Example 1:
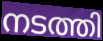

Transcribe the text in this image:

നടത്തി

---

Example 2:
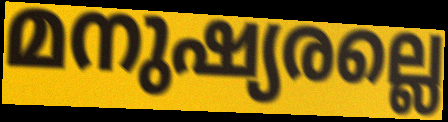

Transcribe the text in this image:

മനുഷ്യരല്ലെ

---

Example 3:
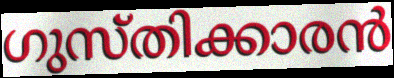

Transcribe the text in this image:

ഗുസ്തിക്കാരൻ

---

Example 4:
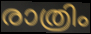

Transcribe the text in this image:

രാത്രിം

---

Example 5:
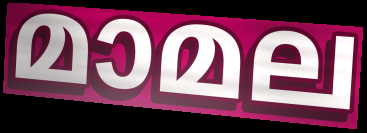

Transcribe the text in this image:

മാമല